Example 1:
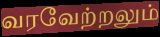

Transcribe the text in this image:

வரவேற்றலும்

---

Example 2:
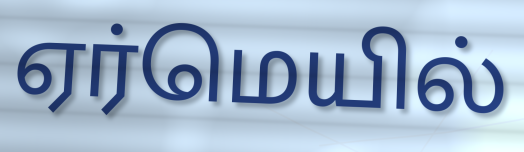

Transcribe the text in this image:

ஏர்மெயில்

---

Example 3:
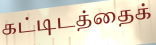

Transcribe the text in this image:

கட்டிடத்தைக்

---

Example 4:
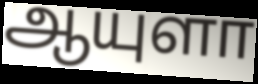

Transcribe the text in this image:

ஆயுளா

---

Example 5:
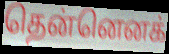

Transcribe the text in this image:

தென்னெனக்